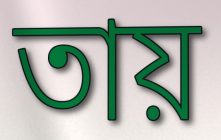
তায়